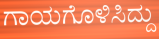
ಗಾಯಗೊಳಿಸಿದ್ದು